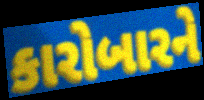
કારોબારને